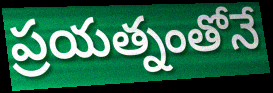
ప్రయత్నంతోనే